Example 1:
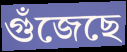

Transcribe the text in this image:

গুঁজেছে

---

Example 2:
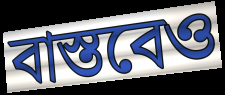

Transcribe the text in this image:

বাস্তবেও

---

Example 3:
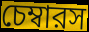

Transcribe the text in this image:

চেম্বারস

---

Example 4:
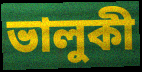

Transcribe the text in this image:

ভালুকী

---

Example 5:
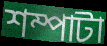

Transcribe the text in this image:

শম্পাটা